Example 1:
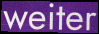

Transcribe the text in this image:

weiter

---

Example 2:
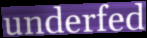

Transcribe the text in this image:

underfed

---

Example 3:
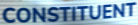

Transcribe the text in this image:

CONSTITUENT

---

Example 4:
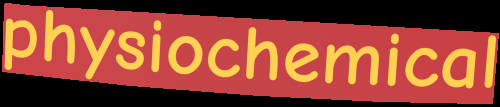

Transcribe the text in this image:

physiochemical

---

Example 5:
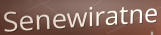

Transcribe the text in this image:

Senewiratne